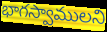
భాగస్వాములని